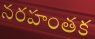
నరహంతక